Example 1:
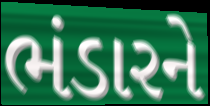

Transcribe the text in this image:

ભંડારને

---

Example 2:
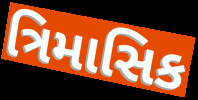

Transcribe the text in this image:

ત્રિમાસિક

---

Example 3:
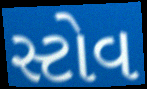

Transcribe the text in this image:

સ્ટોવ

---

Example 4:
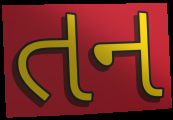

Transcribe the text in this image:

તન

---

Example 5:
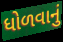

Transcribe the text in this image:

ધોળવાનું